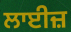
ਲਾਈਜ਼